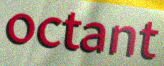
octant